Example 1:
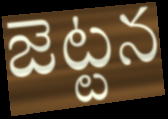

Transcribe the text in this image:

జెట్టన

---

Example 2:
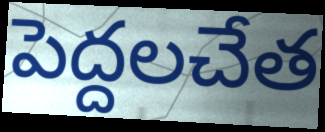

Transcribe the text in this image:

పెద్దలచేత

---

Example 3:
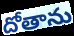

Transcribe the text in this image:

దోతాను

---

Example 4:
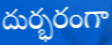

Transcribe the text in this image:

దుర్భరంగా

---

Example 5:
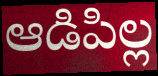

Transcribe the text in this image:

ఆడిపిల్ల